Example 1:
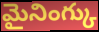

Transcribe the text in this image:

మైనింగ్కు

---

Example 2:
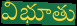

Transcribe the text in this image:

విభూతు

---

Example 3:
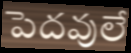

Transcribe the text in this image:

పెదవులే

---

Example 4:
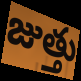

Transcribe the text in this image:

జుత్తు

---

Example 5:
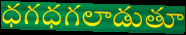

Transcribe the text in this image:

ధగధగలాడుతూ